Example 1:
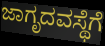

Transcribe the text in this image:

ಜಾಗೃದವಸ್ಥೆಗೆ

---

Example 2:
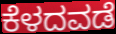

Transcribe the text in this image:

ಕೆಳದವಡೆ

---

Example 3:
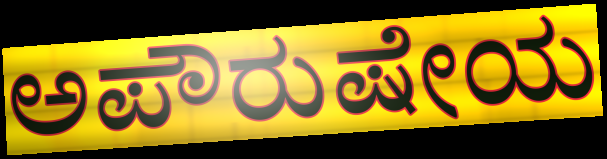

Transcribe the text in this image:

ಅಪೌರುಷೇಯ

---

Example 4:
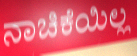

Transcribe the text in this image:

ನಾಚಿಕೆಯಿಲ್ಲ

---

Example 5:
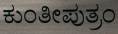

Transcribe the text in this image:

ಕುಂತೀಪುತ್ರಂ